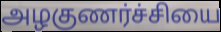
அழகுணர்ச்சியை